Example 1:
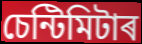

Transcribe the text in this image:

চেন্টিমিটাৰ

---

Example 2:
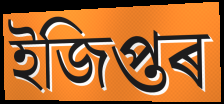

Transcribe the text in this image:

ইজিপ্তৰ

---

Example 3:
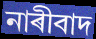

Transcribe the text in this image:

নাৰীবাদ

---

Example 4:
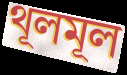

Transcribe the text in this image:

থূলমূল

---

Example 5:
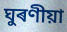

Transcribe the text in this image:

ঘুৰণীয়া